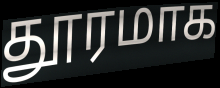
தூரமாக